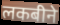
लकबीने